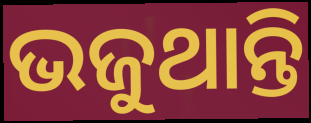
ଭଜୁଥାନ୍ତି